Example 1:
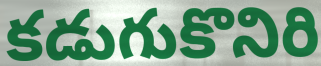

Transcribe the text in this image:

కడుగుకొనిరి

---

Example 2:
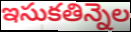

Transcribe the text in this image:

ఇసుకతిన్నెల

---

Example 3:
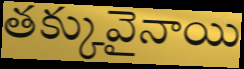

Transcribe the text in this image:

తక్కువైనాయి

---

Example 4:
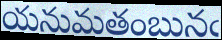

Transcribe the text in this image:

యనుమతంబునఁ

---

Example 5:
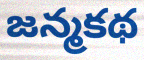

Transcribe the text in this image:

జన్మకథ